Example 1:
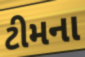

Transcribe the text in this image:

ટીમના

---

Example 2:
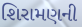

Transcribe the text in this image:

શિરામણની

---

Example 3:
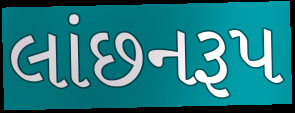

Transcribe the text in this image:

લાંછનરૂપ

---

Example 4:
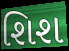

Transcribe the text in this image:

શિશ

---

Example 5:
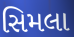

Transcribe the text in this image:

સિમલા